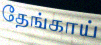
தேங்காய்